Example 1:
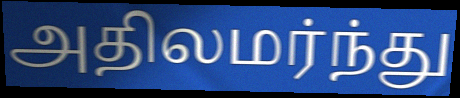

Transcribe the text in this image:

அதிலமர்ந்து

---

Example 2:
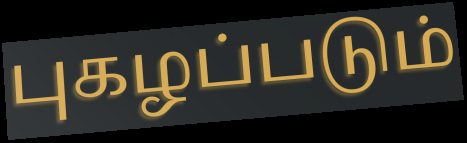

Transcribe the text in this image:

புகழப்படும்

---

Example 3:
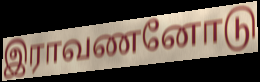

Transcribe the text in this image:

இராவணனோடு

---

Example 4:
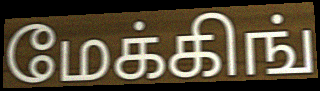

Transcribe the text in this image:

மேக்கிங்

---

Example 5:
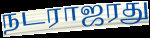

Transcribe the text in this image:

நடராஜரது